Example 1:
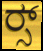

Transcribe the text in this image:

ರ್‍ಸ್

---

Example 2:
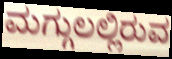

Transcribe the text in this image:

ಮಗ್ಗುಲಲ್ಲಿರುವ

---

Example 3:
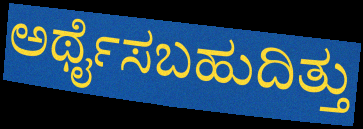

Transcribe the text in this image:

ಅರ್ಥೈಸಬಹುದಿತ್ತು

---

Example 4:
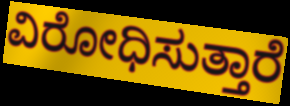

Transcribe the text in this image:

ವಿರೋಧಿಸುತ್ತಾರೆ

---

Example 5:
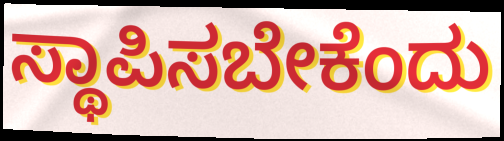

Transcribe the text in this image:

ಸ್ಥಾಪಿಸಬೇಕೆಂದು